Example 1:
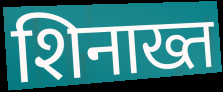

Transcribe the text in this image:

शिनाख्त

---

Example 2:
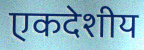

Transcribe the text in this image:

एकदेशीय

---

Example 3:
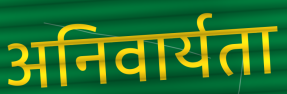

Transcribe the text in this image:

अनिवार्यता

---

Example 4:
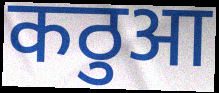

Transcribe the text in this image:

कठुआ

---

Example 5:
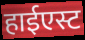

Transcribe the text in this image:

हाईएस्ट